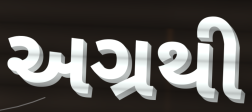
અગ્રથી